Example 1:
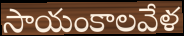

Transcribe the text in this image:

సాయంకాలవేళ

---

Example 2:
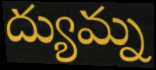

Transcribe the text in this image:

ద్యుమ్న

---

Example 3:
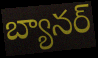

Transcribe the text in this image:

బ్యానర్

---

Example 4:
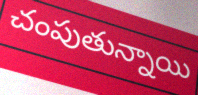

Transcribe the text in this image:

చంపుతున్నాయి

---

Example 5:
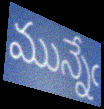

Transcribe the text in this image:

మున్నేఁ